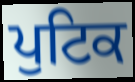
ਪੁਟਿਕ